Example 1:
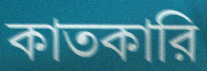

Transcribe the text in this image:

কাতকারি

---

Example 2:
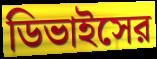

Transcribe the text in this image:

ডিভাইসের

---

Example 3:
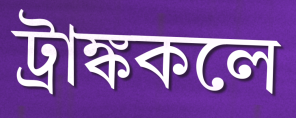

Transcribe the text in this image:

ট্রাঙ্ককলে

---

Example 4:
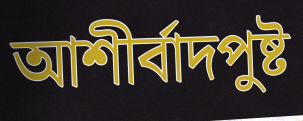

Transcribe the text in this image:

আশীর্বাদপুষ্ট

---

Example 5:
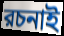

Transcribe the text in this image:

রচনাই